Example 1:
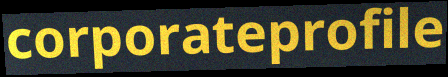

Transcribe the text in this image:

corporateprofile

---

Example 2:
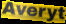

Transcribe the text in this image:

Averyt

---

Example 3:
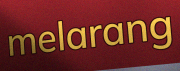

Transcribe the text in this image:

melarang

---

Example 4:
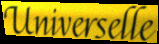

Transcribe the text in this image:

Universelle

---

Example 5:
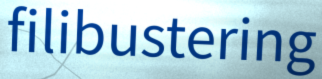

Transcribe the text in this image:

filibustering